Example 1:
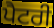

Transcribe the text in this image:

ਪੈਟਰੀ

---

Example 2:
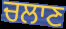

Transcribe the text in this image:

ਚਲਾਣ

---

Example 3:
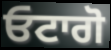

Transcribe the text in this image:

ਓਟਾਗੋ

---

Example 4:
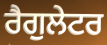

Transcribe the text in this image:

ਰੈਗੁਲੇਟਰ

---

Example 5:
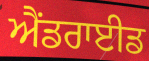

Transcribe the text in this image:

ਐਂਡਰਾਈਡ